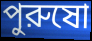
পুৰুষো